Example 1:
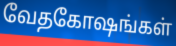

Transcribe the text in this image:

வேதகோஷங்கள்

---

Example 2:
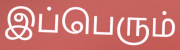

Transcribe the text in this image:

இப்பெரும்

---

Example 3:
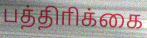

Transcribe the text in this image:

பத்திரிக்கை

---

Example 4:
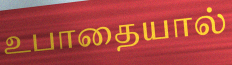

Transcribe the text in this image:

உபாதையால்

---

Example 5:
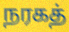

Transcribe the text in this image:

நரகத்